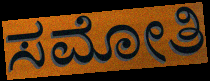
ಸಮೋತಿ